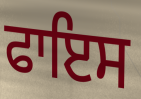
ਫਾਇਸ